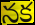
నక